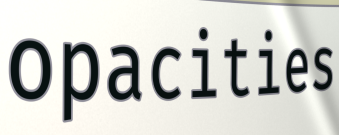
opacities